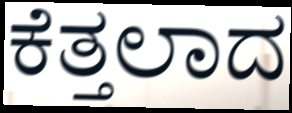
ಕೆತ್ತಲಾದ